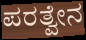
ಪರತ್ವೇನ